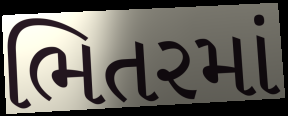
ભિતરમાં